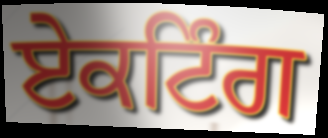
ਏਕਟਿੰਗ